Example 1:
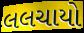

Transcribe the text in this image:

લલચાયો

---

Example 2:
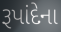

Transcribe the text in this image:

રૂપાંદેના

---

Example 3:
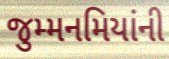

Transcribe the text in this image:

જુમ્મનમિયાંની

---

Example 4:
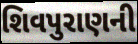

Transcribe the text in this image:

શિવપુરાણની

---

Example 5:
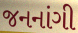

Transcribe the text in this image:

જનનાંગી